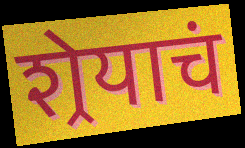
श्रेयाचं